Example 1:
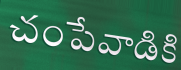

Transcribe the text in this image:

చంపేవాడికి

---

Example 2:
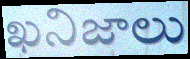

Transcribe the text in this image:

ఖనిజాలు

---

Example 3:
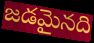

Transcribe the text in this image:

జడమైనది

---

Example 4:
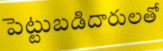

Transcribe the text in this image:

పెట్టుబడిదారులతో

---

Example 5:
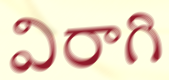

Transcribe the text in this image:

విరాగి